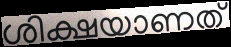
ശിക്ഷയാണത്